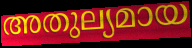
അതുല്യമായ